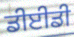
ਡੀਈਡੀ